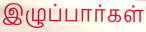
இழுப்பார்கள்